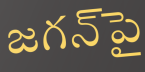
జగన్‌పై